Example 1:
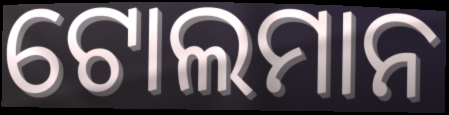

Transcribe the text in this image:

ଟୋଲମାନ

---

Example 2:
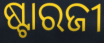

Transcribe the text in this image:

ଷ୍ଟାରଜୀ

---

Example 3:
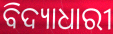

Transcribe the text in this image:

ବିଦ୍ୟାଧାରୀ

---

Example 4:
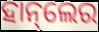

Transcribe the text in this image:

ହାନ୍‌ଲେର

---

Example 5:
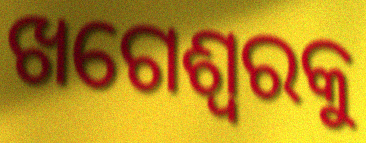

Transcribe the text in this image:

ଖଗେଶ୍ୱରକୁ